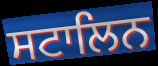
ਸਟਾਲਿਨ